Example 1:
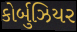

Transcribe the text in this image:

કોર્બુઝિયર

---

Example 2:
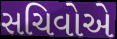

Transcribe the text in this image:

સચિવોએ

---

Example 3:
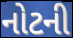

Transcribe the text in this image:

નોટની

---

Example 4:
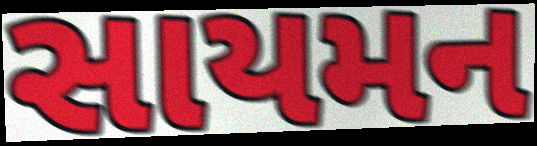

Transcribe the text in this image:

સાયમન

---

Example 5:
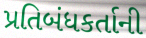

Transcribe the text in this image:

પ્રતિબંધકર્તાની